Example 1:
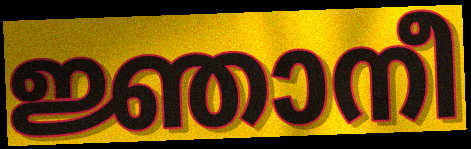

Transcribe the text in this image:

ജ്ഞാനീ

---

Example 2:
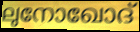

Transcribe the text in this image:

ലുനോഖോദ്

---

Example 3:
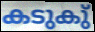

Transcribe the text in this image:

കടുകു്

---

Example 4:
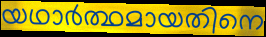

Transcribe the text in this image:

യഥാർത്ഥമായതിനെ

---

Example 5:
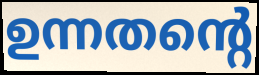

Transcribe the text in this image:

ഉന്നതന്റെ